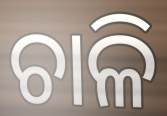
ଚାଳି